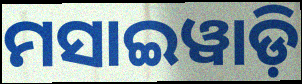
ମସାଇୱାଡ଼ି